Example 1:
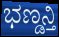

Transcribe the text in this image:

ಭಣ್ಡನ್ತಿ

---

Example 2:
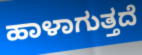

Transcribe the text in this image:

ಹಾಳಾಗುತ್ತದೆ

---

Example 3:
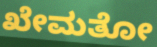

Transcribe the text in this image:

ಖೇಮತೋ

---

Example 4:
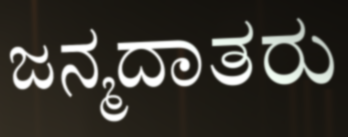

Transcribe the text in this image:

ಜನ್ಮದಾತರು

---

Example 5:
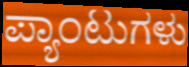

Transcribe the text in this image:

ಪ್ಯಾಂಟುಗಳು